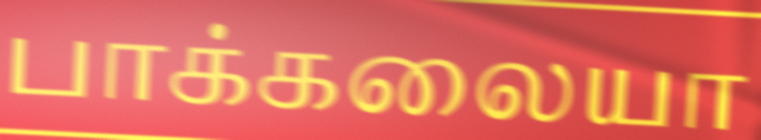
பாக்கலையா